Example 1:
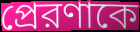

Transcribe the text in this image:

প্রেরণাকে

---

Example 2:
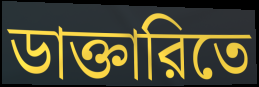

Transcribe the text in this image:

ডাক্তারিতে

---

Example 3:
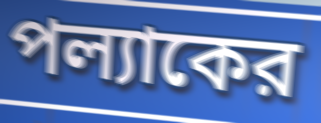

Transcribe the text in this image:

পল্যাকের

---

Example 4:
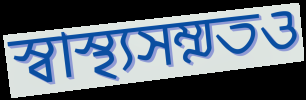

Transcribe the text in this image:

স্বাস্থ্যসম্মতও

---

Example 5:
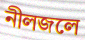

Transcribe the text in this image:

নীলজলে